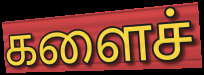
களைச்